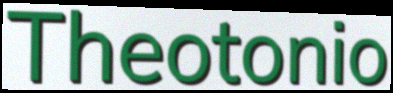
Theotonio